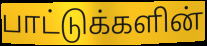
பாட்டுக்களின்